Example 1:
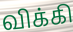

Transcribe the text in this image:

விக்கி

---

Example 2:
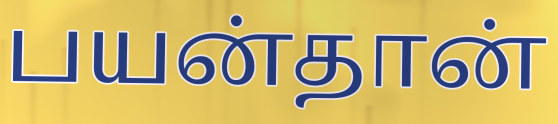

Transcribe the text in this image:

பயன்தான்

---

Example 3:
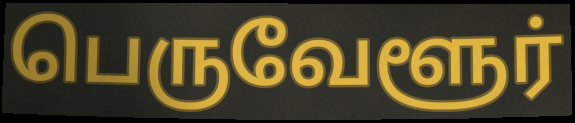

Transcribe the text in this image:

பெருவேளூர்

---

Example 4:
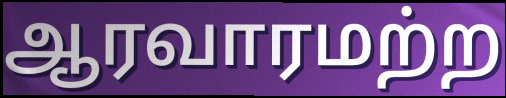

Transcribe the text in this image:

ஆரவாரமற்ற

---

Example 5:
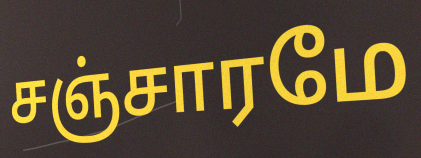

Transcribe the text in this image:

சஞ்சாரமே